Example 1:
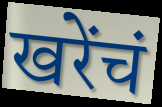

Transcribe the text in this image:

खरेंचं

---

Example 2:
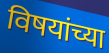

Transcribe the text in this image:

विषयांच्या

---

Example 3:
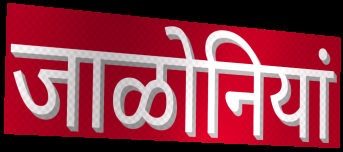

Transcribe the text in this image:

जाळोनियां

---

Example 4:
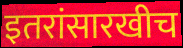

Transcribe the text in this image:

इतरांसारखीच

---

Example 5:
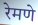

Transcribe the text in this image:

रेमणे